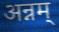
अन्नम्